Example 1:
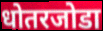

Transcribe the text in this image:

धोतरजोडा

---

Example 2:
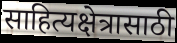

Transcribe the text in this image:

साहित्यक्षेत्रासाठी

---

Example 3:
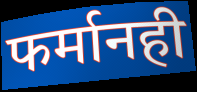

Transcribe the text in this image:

फर्मानही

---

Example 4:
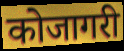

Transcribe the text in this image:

कोजागरी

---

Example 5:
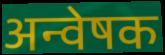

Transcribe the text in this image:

अन्वेषक